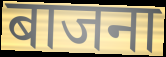
बाजना